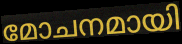
മോചനമായി